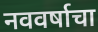
नववर्षाचा